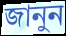
জানুন